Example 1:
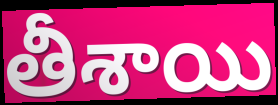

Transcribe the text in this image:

తీశాయి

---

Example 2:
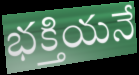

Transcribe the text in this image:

భక్తియనే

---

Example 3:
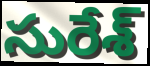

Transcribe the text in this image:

సురేశ్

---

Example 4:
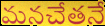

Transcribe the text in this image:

మనచేతనే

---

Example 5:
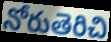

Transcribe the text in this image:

నోరుతెరిచి